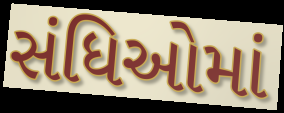
સંધિઓમાં